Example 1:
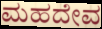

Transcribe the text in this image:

ಮಹದೇವ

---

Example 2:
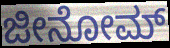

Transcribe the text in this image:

ಜೀನೋಮ್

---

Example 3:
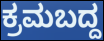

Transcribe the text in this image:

ಕ್ರಮಬದ್ದ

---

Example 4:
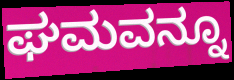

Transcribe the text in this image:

ಘಮವನ್ನೂ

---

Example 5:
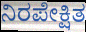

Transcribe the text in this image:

ನಿರಪೇಕ್ಷಿತ